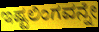
ಇಷ್ಟಲಿಂಗವನ್ನೇ